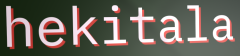
hekitala